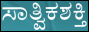
ಸಾತ್ವಿಕಶಕ್ತಿ